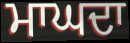
ਮਾਘਦਾ